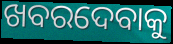
ଖବରଦେବାକୁ